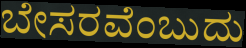
ಬೇಸರವೆಂಬುದು